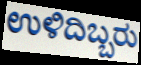
ಉಳಿದಿಬ್ಬರು